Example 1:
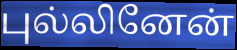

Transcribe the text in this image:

புல்லினேன்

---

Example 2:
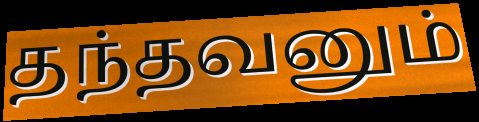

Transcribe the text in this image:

தந்தவனும்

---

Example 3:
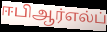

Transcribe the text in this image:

ஈபிஆர்எல்ப்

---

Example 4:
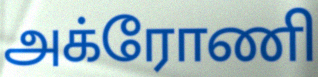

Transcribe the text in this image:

அக்ரோணி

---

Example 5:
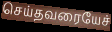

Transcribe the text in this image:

செய்தவரையேச்